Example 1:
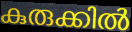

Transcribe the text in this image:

കുരുക്കിൽ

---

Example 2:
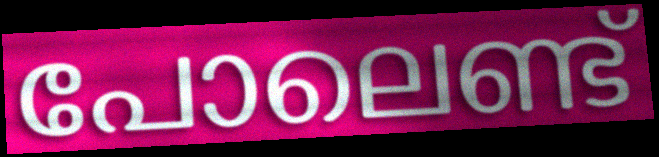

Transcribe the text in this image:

പോലെണ്ട്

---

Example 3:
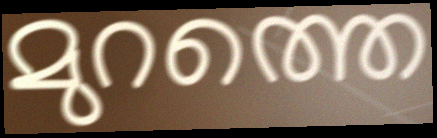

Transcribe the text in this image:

മുറത്തെ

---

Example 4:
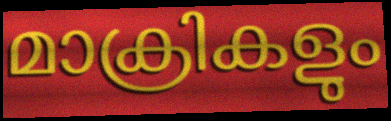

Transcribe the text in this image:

മാക്രികളും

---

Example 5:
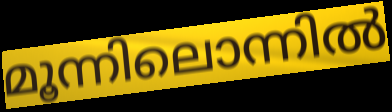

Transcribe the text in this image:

മൂന്നിലൊന്നിൽ